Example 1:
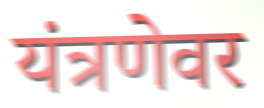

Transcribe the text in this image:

यंत्रणेवर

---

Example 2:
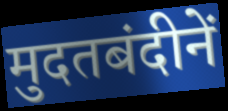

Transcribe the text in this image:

मुदतबंदीनें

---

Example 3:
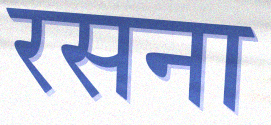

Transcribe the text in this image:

रसना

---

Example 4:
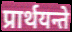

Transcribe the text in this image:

प्रार्थयन्ते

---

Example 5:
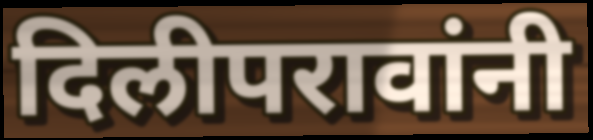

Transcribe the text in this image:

दिलीपरावांनी